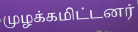
முழக்கமிட்டனர்